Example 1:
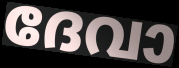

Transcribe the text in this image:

ദേവാ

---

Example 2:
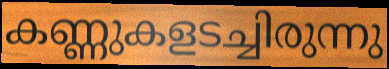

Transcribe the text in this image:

കണ്ണുകളടച്ചിരുന്നു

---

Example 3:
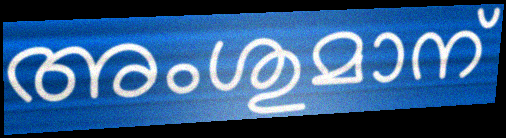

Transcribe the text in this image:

അംശുമാന്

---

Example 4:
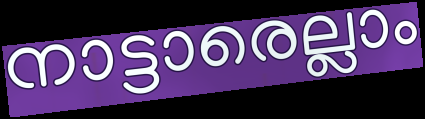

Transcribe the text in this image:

നാട്ടാരെല്ലാം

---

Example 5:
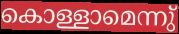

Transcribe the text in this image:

കൊള്ളാമെന്നു്